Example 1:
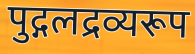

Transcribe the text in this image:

पुद्गलद्रव्यरूप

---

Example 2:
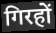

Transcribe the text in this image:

गिरहों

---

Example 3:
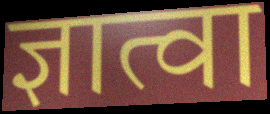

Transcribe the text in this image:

ज्ञात्वा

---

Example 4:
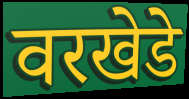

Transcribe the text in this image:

वरखेडे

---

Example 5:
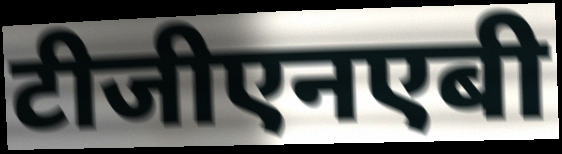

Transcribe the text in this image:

टीजीएनएबी